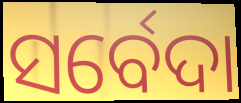
ସର୍ବେଦା